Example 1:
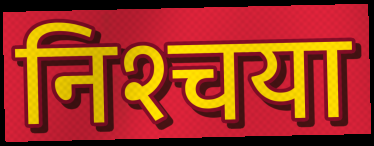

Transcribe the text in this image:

निश्चया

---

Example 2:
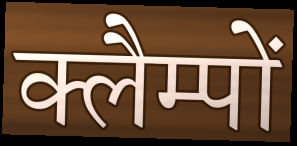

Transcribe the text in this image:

क्लैम्पों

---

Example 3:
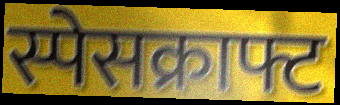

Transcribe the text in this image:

स्‍पेसक्राफ्ट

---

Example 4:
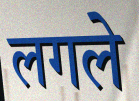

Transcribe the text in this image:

लगले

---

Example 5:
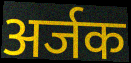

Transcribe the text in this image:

अर्जक